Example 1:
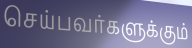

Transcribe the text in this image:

செய்பவர்களுக்கும்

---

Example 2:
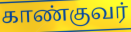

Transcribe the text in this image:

காண்குவர்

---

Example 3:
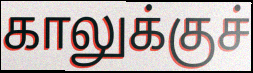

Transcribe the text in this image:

காலுக்குச்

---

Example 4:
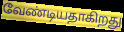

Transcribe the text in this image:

வேண்டியதாகிறது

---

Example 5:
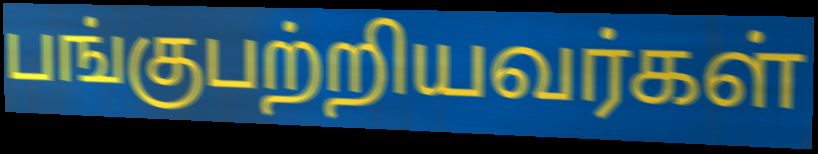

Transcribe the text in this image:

பங்குபற்றியவர்கள்